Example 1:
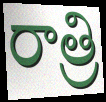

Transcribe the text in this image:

రాత్రి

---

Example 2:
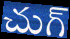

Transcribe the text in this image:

చుగ్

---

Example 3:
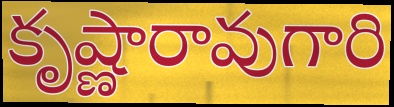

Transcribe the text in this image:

కృష్ణారావుగారి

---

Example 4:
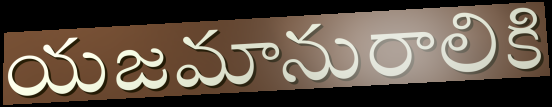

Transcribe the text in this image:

యజమానురాలికి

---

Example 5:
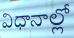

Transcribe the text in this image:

విధానాల్లో